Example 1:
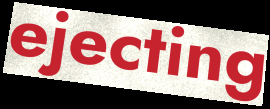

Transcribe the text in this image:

ejecting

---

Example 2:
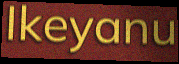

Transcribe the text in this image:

Ikeyanu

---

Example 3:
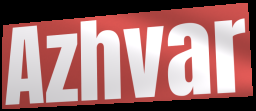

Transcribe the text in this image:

Azhvar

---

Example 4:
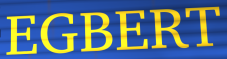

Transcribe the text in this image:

EGBERT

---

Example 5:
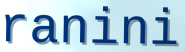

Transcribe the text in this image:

ranini